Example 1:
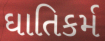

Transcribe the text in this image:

ઘાતિકર્મ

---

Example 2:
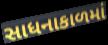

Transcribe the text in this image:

સાધનાકાળમાં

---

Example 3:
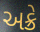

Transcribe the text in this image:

અક્રે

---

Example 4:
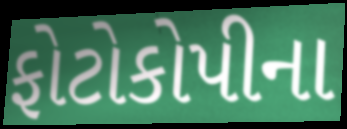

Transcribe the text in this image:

ફોટોકોપીના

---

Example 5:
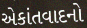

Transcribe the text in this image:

એકાંતવાદનો